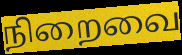
நிறைவை